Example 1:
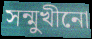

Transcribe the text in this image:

সন্মুখীনো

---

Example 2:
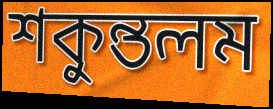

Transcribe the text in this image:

শকুন্তলম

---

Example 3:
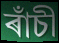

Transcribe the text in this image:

ৰাঁচী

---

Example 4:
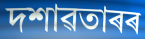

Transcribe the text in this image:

দশাৱতাৰৰ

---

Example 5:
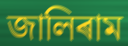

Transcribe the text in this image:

জালিৰাম